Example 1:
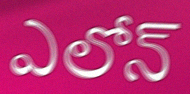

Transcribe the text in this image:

ఎలోన్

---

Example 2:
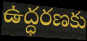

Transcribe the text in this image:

ఉద్ధరణకు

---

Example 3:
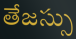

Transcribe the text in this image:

తేజస్సు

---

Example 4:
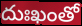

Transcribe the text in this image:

దుఃఖంతో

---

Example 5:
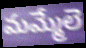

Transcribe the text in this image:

మమ్మేలె